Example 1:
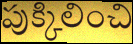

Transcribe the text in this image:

పుక్కిలించి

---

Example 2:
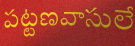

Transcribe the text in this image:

పట్టణవాసులే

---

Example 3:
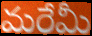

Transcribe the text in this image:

మరేమీ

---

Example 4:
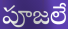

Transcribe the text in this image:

పూజలే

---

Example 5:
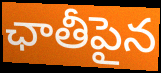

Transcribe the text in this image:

ఛాతీపైన